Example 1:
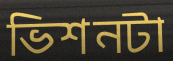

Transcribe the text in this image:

ভিশনটা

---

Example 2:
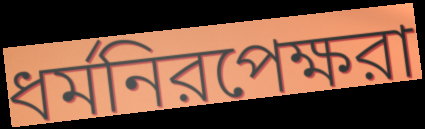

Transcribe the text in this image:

ধর্মনিরপেক্ষরা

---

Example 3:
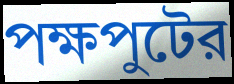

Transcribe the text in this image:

পক্ষপুটের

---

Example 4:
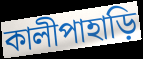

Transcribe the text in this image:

কালীপাহাড়ি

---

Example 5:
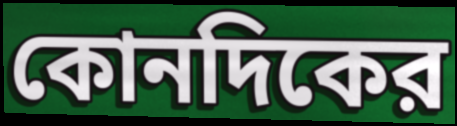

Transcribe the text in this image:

কোনদিকের